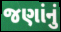
જણાંનું